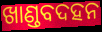
ଖାଣ୍ଡବଦହନ